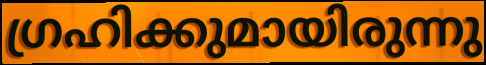
ഗ്രഹിക്കുമായിരുന്നു